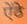
ऐंठे